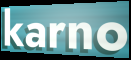
karno